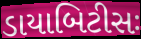
ડાયાબિટીસઃ